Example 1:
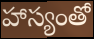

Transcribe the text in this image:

హాస్యంతో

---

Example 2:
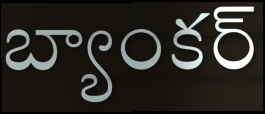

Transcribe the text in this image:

బ్యాంకర్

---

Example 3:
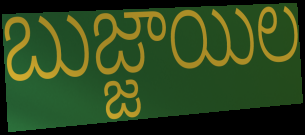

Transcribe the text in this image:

బుజ్జాయిల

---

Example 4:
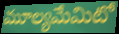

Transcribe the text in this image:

మూల్యమేమిటో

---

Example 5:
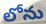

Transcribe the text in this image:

లోను